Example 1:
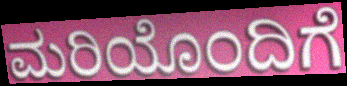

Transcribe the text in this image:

ಮರಿಯೊಂದಿಗೆ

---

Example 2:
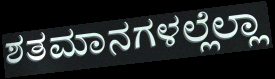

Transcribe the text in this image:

ಶತಮಾನಗಳಲ್ಲೆಲ್ಲಾ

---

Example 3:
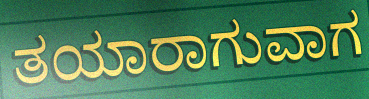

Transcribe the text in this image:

ತಯಾರಾಗುವಾಗ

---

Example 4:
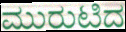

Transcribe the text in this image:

ಮುರುಟಿದ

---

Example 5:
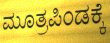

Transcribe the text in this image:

ಮೂತ್ರಪಿಂಡಕ್ಕೆ